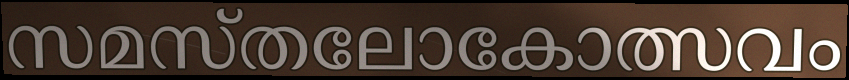
സമസ്തലോകോത്സവം